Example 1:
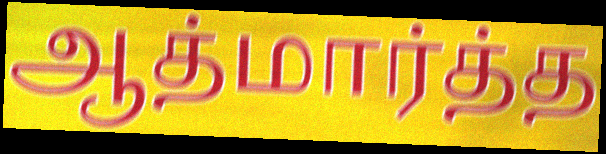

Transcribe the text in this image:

ஆத்மார்த்த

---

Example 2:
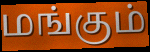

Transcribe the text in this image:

மங்கும்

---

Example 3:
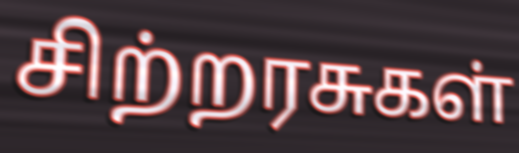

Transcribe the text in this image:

சிற்றரசுகள்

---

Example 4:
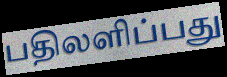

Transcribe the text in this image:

பதிலளிப்பது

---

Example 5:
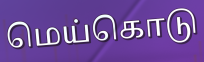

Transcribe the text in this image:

மெய்கொடு